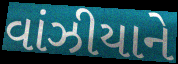
વાંઝીયાને